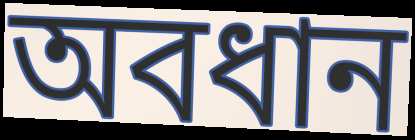
অবধান